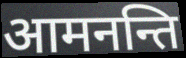
आमनन्ति